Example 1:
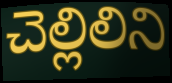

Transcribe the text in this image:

చెల్లిలిని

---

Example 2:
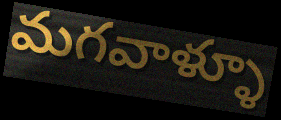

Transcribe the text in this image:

మగవాళ్ళూ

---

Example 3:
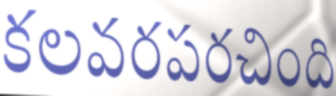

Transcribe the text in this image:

కలవరపరచింది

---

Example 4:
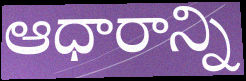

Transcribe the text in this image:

ఆధారాన్ని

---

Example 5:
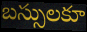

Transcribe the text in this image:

బస్సులకూ